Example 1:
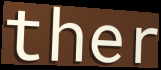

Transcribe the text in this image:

ther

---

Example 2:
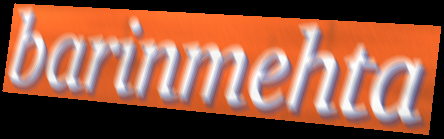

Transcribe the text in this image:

barinmehta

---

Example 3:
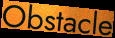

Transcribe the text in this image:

Obstacle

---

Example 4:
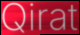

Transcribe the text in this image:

Qirat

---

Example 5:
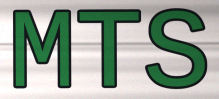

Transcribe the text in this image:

MTS